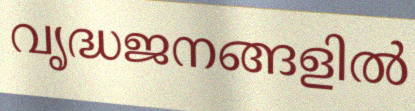
വൃദ്ധജനങ്ങളിൽ